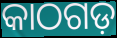
କାଠଗଡ଼